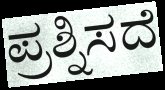
ಪ್ರಶ್ನಿಸದೆ